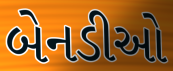
બેનડીઓ